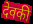
देवकी